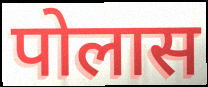
पोलास